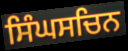
ਸਿੰਘਸਚਿਨ